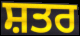
ਸ਼ਤਰ